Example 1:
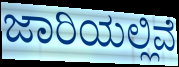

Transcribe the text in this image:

ಜಾರಿಯಲ್ಲಿವೆ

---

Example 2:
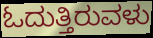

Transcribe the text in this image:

ಓದುತ್ತಿರುವಳು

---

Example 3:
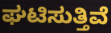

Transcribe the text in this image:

ಘಟಿಸುತ್ತಿವೆ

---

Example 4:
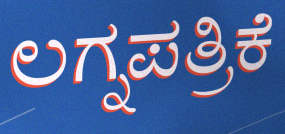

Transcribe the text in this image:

ಲಗ್ನಪತ್ರಿಕೆ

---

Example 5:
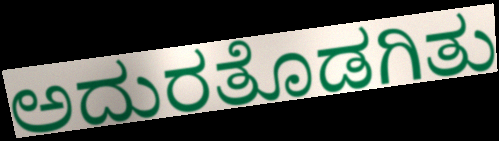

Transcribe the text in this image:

ಅದುರತೊಡಗಿತು